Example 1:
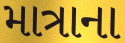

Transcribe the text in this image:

માત્રાના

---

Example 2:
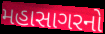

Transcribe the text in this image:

મહાસાગરનો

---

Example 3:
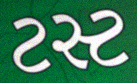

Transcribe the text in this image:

ટસ્ટ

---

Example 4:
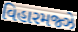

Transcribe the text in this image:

વિહારમજ્ઝે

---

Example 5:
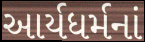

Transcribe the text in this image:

આર્યધર્મનાં